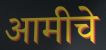
आमीचे